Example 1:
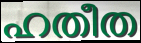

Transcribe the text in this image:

ഹതീത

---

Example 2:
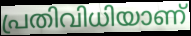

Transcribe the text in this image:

പ്രതിവിധിയാണ്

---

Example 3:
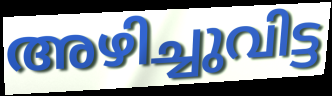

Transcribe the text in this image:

അഴിച്ചുവിട്ട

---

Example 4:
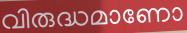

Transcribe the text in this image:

വിരുദ്ധമാണോ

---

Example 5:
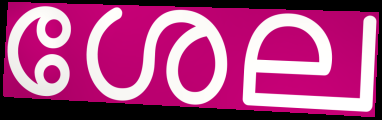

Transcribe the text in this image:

ശേല